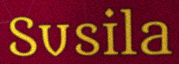
Susila